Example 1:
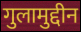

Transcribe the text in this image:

गुलामुद्दीन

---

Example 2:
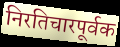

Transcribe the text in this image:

निरतिचारपूर्वक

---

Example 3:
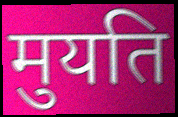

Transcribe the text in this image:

मुयति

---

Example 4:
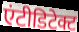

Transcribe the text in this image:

एंटीडिटेक्ट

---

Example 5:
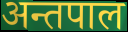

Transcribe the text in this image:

अन्तपाल